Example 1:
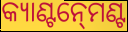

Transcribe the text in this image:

କ୍ୟାଣ୍ଟନ୍‍ମେଣ୍ଟ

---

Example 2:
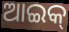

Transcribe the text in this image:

ଆଇକ୍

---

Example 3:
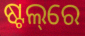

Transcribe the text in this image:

ଷ୍ଟଲ୍‌ରେ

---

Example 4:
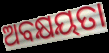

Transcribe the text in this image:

ଅବକ୍ଷୟତା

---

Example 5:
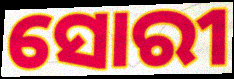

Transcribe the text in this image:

ସୋରୀ